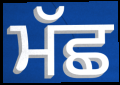
ਮੱਛ